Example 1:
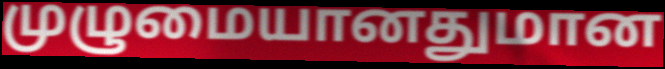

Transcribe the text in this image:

முழுமையானதுமான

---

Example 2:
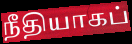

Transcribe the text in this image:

நீதியாகப்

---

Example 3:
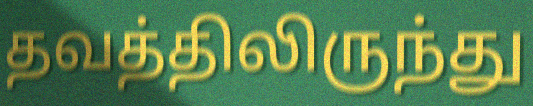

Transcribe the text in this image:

தவத்திலிருந்து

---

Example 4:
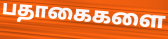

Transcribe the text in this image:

பதாகைகளை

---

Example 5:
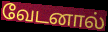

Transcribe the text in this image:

வேடனால்